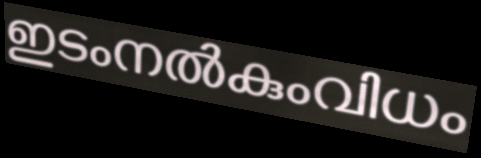
ഇടംനൽകുംവിധം